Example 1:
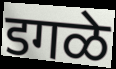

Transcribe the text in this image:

डगळे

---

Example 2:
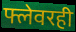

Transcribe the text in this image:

फ्लेवरही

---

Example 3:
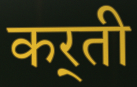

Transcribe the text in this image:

कर्ती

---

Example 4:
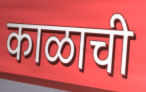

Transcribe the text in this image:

काळाची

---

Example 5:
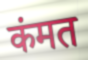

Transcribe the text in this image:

कंमत